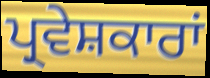
ਪ੍ਰਵੇਸ਼ਕਾਰਾਂ